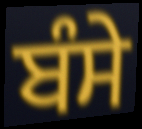
ਬੰਸੇ